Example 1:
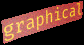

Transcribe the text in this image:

graphical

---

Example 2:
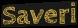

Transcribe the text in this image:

Saveri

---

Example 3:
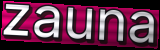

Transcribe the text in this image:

zauna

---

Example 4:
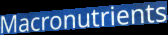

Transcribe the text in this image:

Macronutrients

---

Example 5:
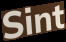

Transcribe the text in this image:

Sint